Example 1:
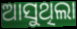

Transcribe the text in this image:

ଆସୁଥିଲା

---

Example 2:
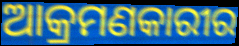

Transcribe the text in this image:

ଆକ୍ରମଣକାରୀର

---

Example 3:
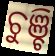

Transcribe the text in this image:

ଚୁଞ୍ଚି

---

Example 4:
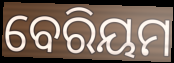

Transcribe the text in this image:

ବେରିୟମ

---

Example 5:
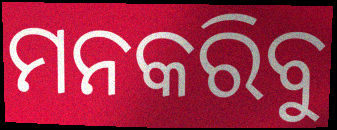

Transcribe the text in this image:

ମନକରିବୁ